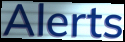
Alerts